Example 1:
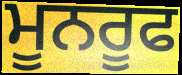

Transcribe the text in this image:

ਮੂਨਰੂਫ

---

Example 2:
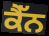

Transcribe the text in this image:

ਕੈੱਨ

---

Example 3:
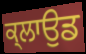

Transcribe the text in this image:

ਕ੍ਲਾਉਡ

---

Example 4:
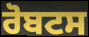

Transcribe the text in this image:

ਰੋਬਟਸ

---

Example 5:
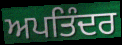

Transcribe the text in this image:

ਅਪਤਿੰਦਰ